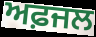
ਅਫ਼ਜਲ